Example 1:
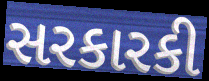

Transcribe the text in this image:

સરકારકી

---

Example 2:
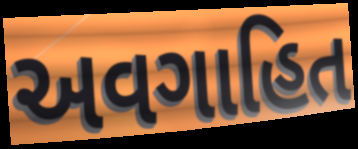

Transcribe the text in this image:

અવગાહિત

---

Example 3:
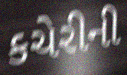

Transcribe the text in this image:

કચેરીની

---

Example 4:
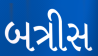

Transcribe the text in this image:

બત્રીસ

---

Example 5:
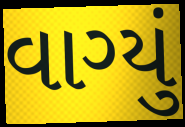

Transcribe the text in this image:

વાગ્યું